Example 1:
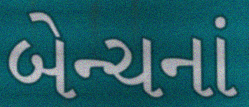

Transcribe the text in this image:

બેન્ચનાં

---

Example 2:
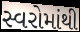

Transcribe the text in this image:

સ્વરોમાંથી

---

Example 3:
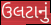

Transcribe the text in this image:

ઉલટાનું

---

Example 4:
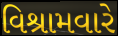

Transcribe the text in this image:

વિશ્રામવારે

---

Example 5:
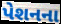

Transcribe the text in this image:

પેશનના